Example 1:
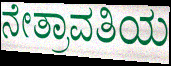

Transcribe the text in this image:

ನೇತ್ರಾವತಿಯ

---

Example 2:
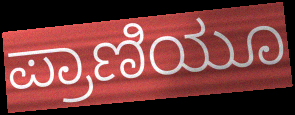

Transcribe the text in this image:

ಪ್ರಾಣಿಯೂ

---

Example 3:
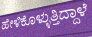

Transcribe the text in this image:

ಹೇಳಿಕೊಳ್ಳುತ್ತಿದ್ದಾಳೆ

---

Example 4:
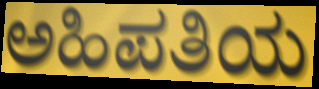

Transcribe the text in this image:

ಅಹಿಪತಿಯ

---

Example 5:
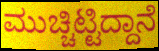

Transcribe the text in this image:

ಮುಚ್ಚಿಟ್ಟಿದ್ದಾನೆ